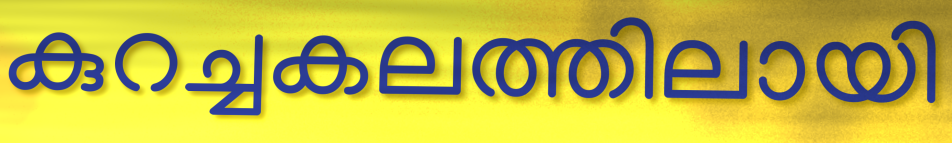
കുറച്ചകലത്തിലായി